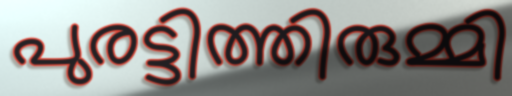
പുരട്ടിത്തിരുമ്മി